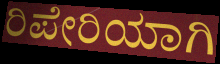
ರಿಪೇರಿಯಾಗಿ